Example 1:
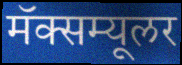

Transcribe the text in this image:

मॅक्सम्यूलर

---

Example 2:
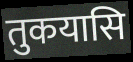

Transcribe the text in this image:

तुकयासि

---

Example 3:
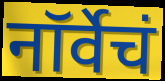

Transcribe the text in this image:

नॉर्वेचं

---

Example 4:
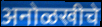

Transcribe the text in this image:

अनोळखीचे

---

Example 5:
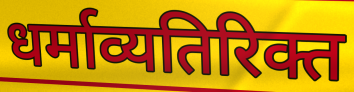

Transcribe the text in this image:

धर्माव्यतिरिक्त